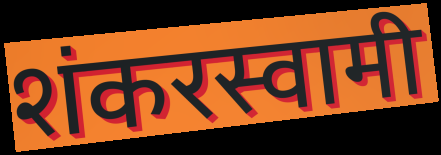
शंकरस्वामी